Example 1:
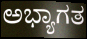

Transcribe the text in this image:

ಅಭ್ಯಾಗತ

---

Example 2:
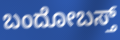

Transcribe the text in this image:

ಬಂದೋಬಸ್ತ್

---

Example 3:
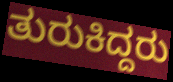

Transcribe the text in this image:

ತುರುಕಿದ್ದರು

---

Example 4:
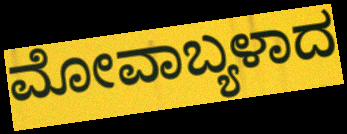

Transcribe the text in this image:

ಮೋವಾಬ್ಯಳಾದ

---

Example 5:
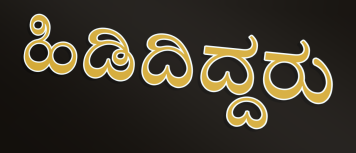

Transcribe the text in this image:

ಹಿಡಿದಿದ್ದರು